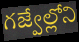
గజ్వేల్లోని